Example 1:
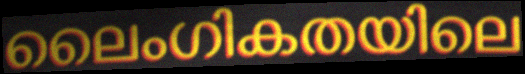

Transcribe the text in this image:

ലൈംഗികതയിലെ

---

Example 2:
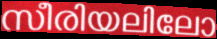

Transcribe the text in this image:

സീരിയലിലോ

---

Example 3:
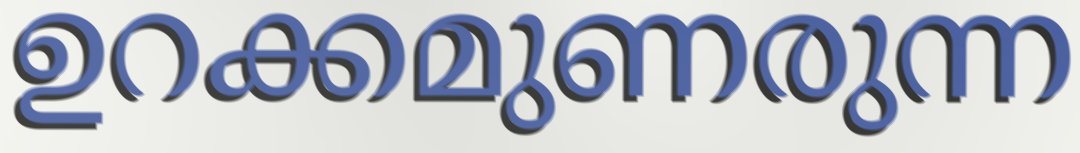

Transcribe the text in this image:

ഉറക്കമുണരുന്ന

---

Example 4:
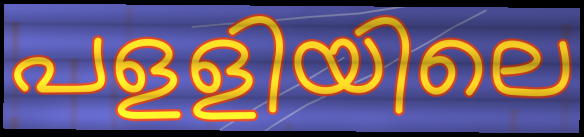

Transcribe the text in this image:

പളളിയിലെ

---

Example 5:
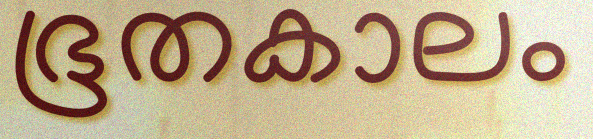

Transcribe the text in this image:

ഭൂതകാലം